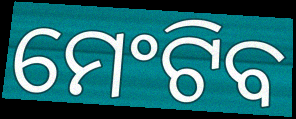
ମେଂଟିବ